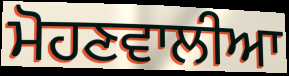
ਮੋਹਣਵਾਲੀਆ